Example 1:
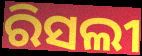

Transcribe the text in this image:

ରିସଲୀ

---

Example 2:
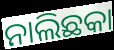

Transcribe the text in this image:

ନାଲିଛକା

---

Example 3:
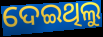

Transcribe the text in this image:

ଦେଇଥିଲୁ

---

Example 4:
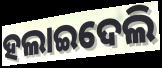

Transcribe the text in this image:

ହଲାଇଦେଲି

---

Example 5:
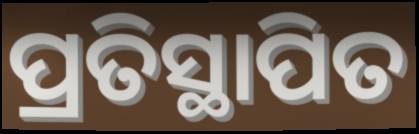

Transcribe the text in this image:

ପ୍ରତିସ୍ଥାପିତ